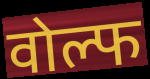
वोल्फ